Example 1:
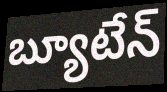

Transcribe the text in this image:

బ్యూటేన్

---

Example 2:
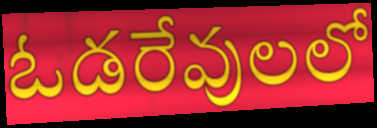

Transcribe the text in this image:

ఓడరేవులలో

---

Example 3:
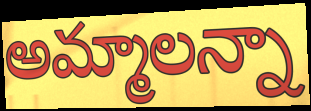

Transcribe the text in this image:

అమ్మాలన్నా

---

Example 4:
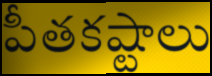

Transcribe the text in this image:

పీతకష్టాలు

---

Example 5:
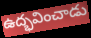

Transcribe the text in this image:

ఉద్భవించాడు